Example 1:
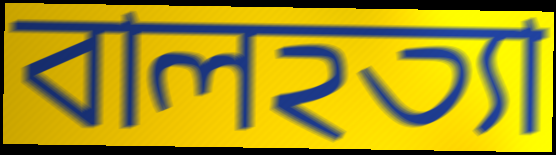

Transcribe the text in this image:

বালহত্যা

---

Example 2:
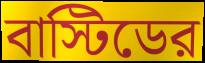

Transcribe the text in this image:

বাস্টিডের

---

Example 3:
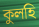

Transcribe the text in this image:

কুলহি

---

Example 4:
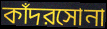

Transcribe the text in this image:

কাঁদরসোনা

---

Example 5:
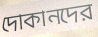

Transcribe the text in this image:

দোকানদের